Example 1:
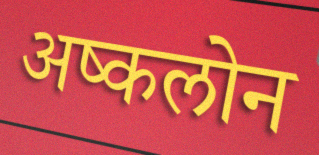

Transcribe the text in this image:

अष्कलोन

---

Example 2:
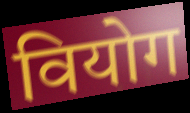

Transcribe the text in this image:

वियोग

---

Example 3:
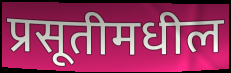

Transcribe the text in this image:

प्रसूतीमधील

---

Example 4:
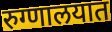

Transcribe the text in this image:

रुग्णालयात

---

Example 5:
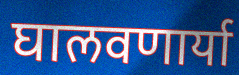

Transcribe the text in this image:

घालवणार्या